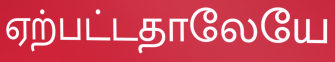
ஏற்பட்டதாலேயே